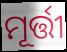
ମୂର୍ତ୍ତୀ